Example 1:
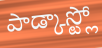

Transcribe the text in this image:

పాడ్కాస్ట్లో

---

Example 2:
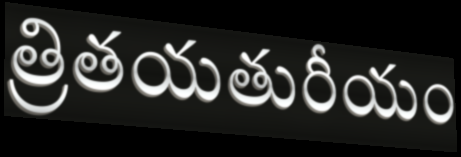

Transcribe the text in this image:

త్రితయతురీయం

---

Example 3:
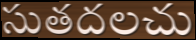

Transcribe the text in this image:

సుతదలచు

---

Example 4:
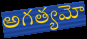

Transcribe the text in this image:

అగత్యమో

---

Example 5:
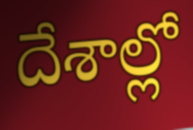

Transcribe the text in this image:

దేశాల్లో